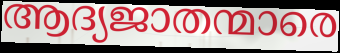
ആദ്യജാതന്മാരെ